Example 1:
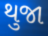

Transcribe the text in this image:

થુજા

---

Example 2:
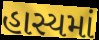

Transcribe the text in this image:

હાસ્યમાં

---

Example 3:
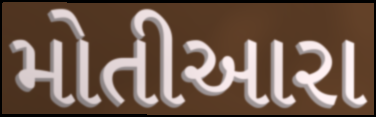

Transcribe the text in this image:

મોતીઆરા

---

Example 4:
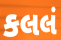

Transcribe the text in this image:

કલલં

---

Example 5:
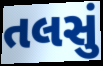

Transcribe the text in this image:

તલસું